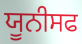
ਯੂਨੀਸਫ